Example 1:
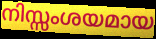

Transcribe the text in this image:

നിസ്സംശയമായ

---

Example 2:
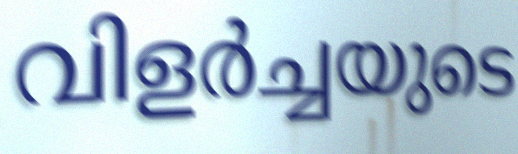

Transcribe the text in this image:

വിളർച്ചയുടെ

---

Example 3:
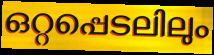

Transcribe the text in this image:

ഒറ്റപ്പെടലിലും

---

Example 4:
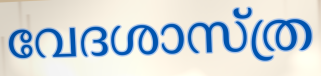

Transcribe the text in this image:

വേദശാസ്ത്ര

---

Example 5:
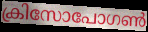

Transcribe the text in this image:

ക്രിസോപോഗൺ